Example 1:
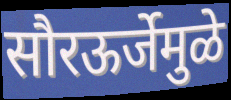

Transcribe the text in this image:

सौरऊर्जेमुळे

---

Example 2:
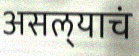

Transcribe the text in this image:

असल्याचं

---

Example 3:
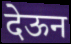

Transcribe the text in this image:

देऊन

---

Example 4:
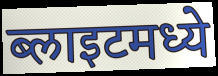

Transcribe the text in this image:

ब्लाइटमध्ये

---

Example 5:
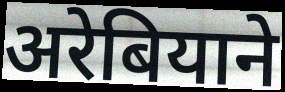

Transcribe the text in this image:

अरेबियाने